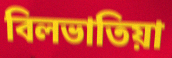
বিলভাতিয়া